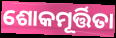
ଶୋକମୂର୍ତ୍ତିତା